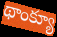
థాంక్యూ